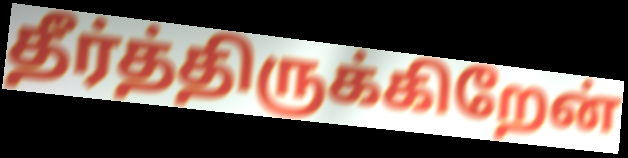
தீர்த்திருக்கிறேன்